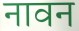
नावन